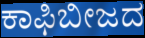
ಕಾಫಿಬೀಜದ